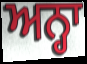
ਅਨ੍ਹਾ